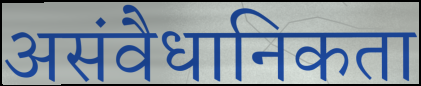
असंवैधानिकता